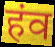
हंव